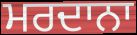
ਮਰਦਾਨਾ